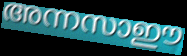
അന്നസാഈ